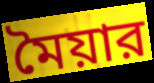
মৈয়ার